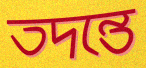
তদন্তে